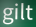
gilt